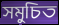
সমুচিত